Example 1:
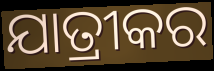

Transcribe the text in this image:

ଯାତ୍ରୀକର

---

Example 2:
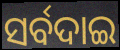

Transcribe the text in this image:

ସର୍ବଦାଇ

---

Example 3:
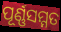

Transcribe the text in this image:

ପୂର୍ଣ୍ଣସମ୍ମତ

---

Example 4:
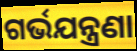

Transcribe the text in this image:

ଗର୍ଭଯନ୍ତ୍ରଣା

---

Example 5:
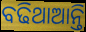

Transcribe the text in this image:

ବଢିଥାଆନ୍ତି